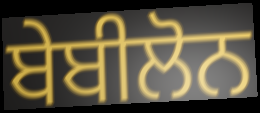
ਬੇਬੀਲੋਨ